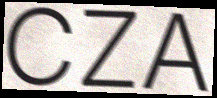
CZA